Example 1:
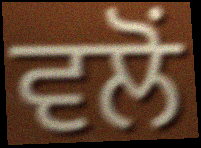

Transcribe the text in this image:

ਵਲੋੰ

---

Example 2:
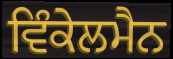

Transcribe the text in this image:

ਵਿੰਕੇਲਮੈਨ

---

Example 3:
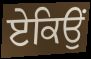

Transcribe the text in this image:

ਏਕਿਉਂ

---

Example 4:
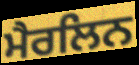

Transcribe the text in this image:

ਮੈਰਲਿਨ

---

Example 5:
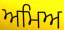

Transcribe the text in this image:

ਅਮਿਅ